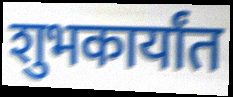
शुभकार्यांत